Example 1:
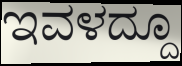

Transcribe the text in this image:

ಇವಳದ್ದೂ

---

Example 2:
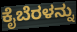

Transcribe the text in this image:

ಕೈಬೆರಳನ್ನು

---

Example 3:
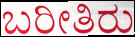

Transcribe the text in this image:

ಬರೀತಿರು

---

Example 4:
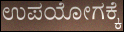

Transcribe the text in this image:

ಉಪಯೋಗಕ್ಕೆ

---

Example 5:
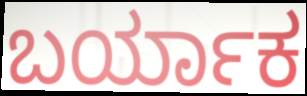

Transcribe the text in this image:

ಬರ್ಯಾಕ